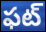
ఫట్